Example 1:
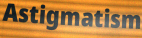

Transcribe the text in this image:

Astigmatism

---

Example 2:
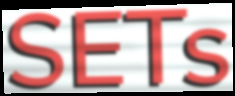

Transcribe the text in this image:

SETs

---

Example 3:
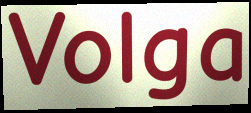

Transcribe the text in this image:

Volga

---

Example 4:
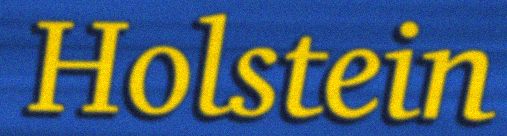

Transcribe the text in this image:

Holstein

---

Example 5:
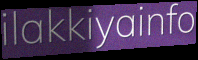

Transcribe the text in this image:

ilakkiyainfo